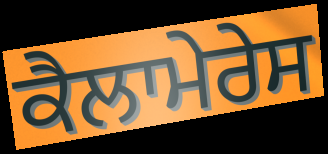
ਕੈਲਾਮੇਰੇਸ